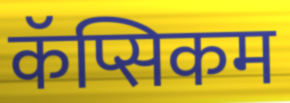
कॅप्सिकम